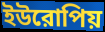
ইউরোপিয়